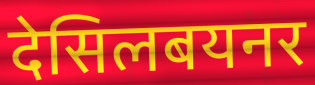
देसिलबयनर